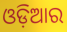
ଓଡ଼ିଆର